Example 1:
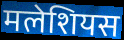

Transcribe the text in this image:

मलेशियस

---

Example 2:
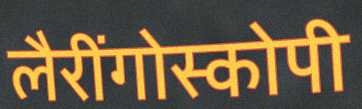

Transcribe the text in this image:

लैरींगोस्कोपी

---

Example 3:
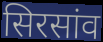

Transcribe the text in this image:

सिरसांव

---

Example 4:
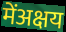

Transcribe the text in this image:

मेंअक्षय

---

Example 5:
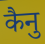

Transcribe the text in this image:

कैनु